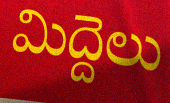
మిద్దెలు